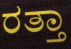
ರತ್ತಾ